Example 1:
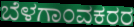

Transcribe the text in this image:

ಬೆಳಗಾಂವಕರರ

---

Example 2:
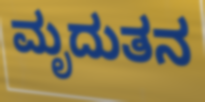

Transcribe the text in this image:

ಮೃದುತನ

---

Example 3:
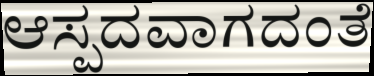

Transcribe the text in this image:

ಆಸ್ಪದವಾಗದಂತೆ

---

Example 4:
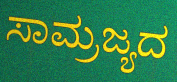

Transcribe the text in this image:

ಸಾಮ್ರಜ್ಯದ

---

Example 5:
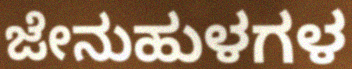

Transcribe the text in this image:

ಜೇನುಹುಳಗಳ